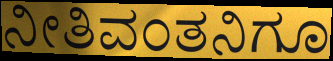
ನೀತಿವಂತನಿಗೂ